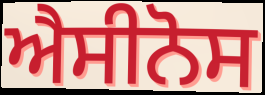
ਐਸੀਨੋਸ